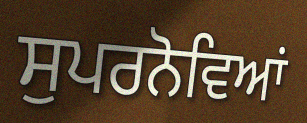
ਸੁਪਰਨੋਵਿਆਂ